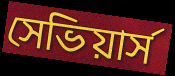
সেভিয়ার্স